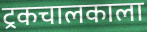
ट्रकचालकाला